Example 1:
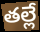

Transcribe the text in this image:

తల్లే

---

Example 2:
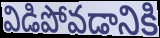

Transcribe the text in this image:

విడిపోవడానికి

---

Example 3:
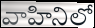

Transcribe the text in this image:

వాహినిలో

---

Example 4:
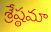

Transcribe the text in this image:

శ్రేష్ఠమా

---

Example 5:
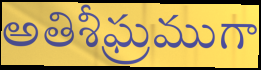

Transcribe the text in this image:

అతిశీఘ్రముగా